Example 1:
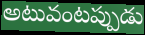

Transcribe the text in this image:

అటువంటప్పుడు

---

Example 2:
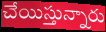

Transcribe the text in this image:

చేయిస్తున్నారు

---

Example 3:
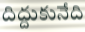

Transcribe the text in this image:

దిద్దుకునేది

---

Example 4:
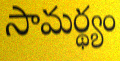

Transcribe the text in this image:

సామర్థ్యం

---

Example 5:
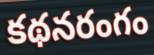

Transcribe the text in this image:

కథనరంగం